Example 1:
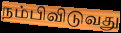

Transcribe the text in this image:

நம்பிவிடுவது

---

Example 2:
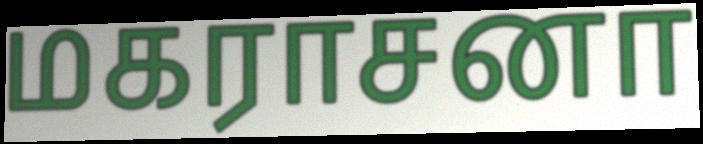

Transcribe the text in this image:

மகராசனா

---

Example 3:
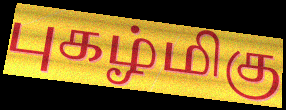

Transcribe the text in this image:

புகழ்மிகு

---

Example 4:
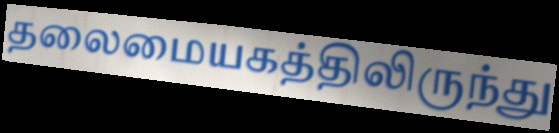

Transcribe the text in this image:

தலைமையகத்திலிருந்து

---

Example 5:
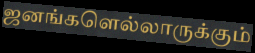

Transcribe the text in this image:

ஜனங்களெல்லாருக்கும்